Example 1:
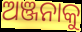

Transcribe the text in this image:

ଅଞ୍ଜନାକୁ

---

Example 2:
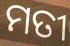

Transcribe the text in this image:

ମତୀ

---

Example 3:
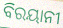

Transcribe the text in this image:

ବିରୟାନୀ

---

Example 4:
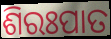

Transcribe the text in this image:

ଶିରଃପାତ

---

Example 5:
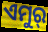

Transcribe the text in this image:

ଏମୁର୍